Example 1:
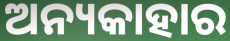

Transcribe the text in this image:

ଅନ୍ୟକାହାର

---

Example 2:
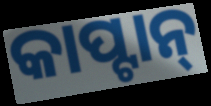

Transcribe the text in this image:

କାପ୍ଟାନ୍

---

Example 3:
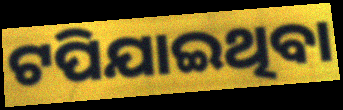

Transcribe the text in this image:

ଟପିଯାଇଥିବା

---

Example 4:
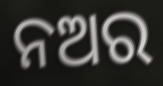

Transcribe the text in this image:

ନଅର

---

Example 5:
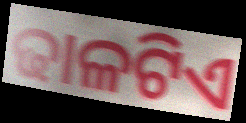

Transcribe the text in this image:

ଢାଳଟିଏ